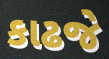
કાઢજે